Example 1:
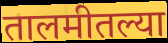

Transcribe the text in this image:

तालमीतल्या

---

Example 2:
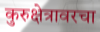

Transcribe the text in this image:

कुरुक्षेत्रावरचा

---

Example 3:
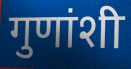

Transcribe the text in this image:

गुणांशी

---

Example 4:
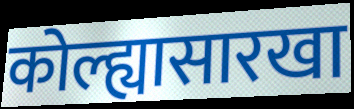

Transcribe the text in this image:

कोल्ह्यासारखा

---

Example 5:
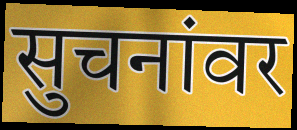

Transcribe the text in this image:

सुचनांवर